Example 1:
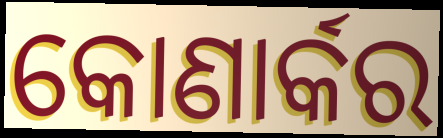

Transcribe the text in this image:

କୋଣାର୍କର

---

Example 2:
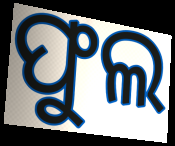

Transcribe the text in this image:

ଫୁଲ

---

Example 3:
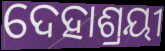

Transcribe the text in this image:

ଦେହାଶ୍ରୟୀ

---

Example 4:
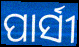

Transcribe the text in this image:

ପାର୍ସୀ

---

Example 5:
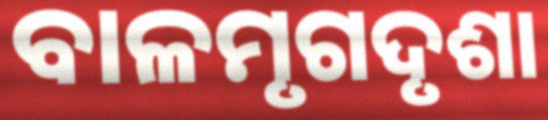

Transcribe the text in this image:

ବାଳମୃଗଦୃଶା